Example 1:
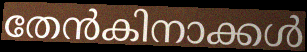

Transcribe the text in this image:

തേൻകിനാക്കൾ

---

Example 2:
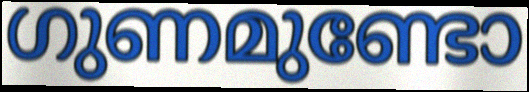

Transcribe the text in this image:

ഗുണമുണ്ടോ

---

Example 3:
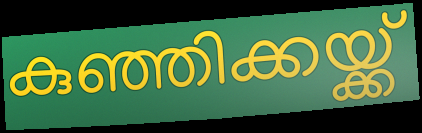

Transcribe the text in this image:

കുഞ്ഞിക്കയ്ക്ക്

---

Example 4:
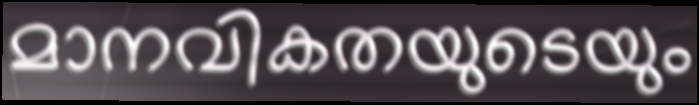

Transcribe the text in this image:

മാനവികതയുടെയും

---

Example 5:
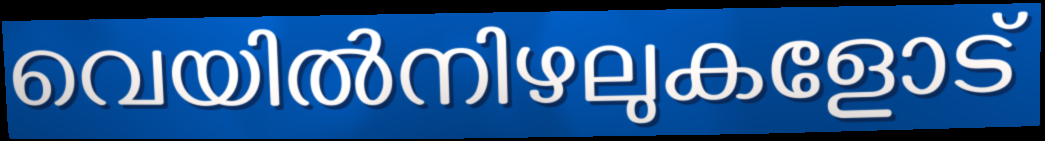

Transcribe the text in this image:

വെയിൽനിഴലുകളോട്